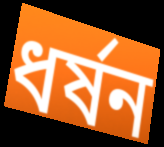
ধর্ষন